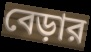
বেড়ার